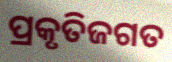
ପ୍ରକୃତିଜଗତ